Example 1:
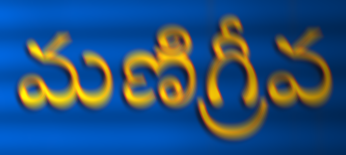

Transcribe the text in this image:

మణిగ్రీవ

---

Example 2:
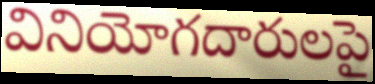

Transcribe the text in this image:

వినియోగదారులపై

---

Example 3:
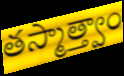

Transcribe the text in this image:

తస్మాత్త్వాం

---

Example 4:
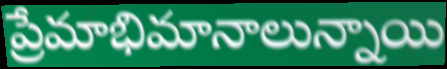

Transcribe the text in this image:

ప్రేమాభిమానాలున్నాయి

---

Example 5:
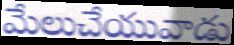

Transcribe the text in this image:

మేలుచేయువాడు